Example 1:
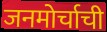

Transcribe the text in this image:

जनमोर्चाची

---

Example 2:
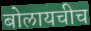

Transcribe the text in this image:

बोलायचीच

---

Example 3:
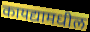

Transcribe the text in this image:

कायद्यामधील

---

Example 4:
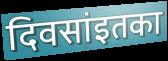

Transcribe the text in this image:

दिवसांइतका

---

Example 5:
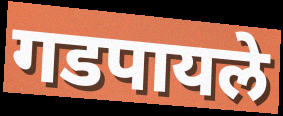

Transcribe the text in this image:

गडपायले